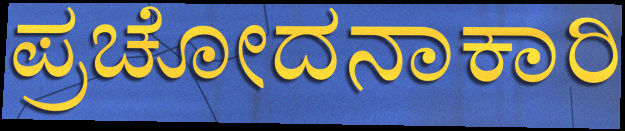
ಪ್ರಚೋದನಾಕಾರಿ